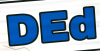
DEd